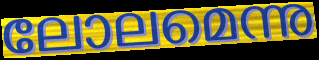
ലോലമെന്നു